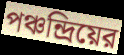
পঞ্চন্দ্রিয়ের